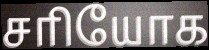
சரியோக